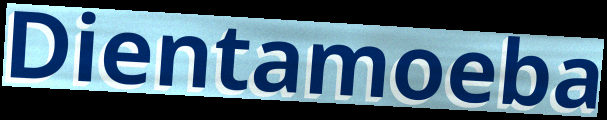
Dientamoeba